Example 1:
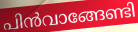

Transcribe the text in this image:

പിൻവാങ്ങേണ്ടി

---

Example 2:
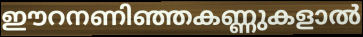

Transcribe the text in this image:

ഈറനണിഞ്ഞകണ്ണുകളാൽ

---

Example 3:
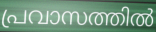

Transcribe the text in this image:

പ്രവാസത്തിൽ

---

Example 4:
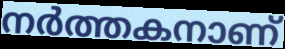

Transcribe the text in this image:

നർത്തകനാണ്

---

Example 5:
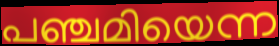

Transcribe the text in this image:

പഞ്ചമിയെന്ന